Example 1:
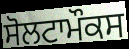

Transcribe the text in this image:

ਸੋਲਟਾਮੌਕਸ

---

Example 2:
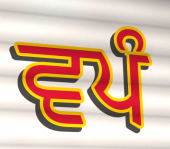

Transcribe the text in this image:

ਵਪੰ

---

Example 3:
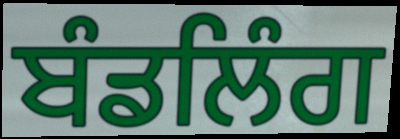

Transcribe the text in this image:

ਬੰਡਲਿੰਗ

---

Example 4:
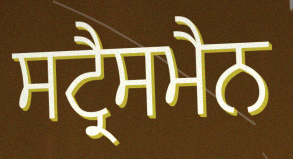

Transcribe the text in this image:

ਸਟ੍ਰੈਸਮੈਨ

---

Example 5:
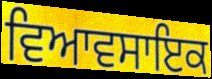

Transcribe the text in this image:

ਵਿਆਵਸਾਇਕ